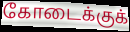
கோடைக்குக்